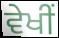
ਵੇਖੀਂ